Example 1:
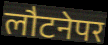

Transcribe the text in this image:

लौटनेपर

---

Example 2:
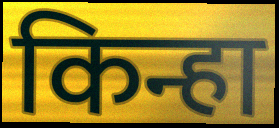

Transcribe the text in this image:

किन्हा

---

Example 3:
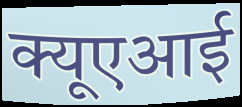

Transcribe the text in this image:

क्यूएआई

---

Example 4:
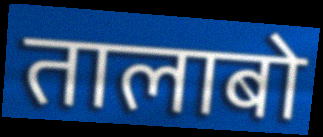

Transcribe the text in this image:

तालाबो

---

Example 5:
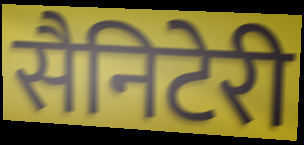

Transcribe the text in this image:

सैनिटेरी